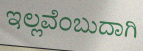
ಇಲ್ಲವೆಂಬುದಾಗಿ